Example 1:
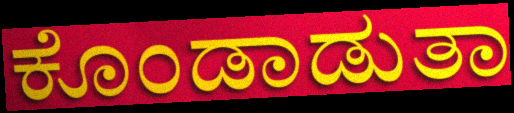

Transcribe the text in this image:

ಕೊಂಡಾಡುತಾ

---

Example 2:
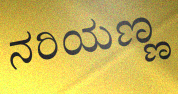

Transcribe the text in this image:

ನರಿಯಣ್ಣ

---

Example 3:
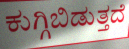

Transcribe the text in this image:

ಕುಗ್ಗಿಬಿಡುತ್ತದೆ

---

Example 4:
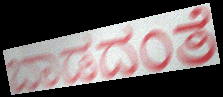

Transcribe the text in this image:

ಬಾಡದಂತೆ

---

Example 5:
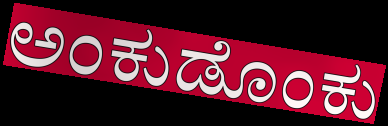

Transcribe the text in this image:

ಅಂಕುಡೊಂಕು